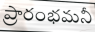
ప్రారంభమనీ